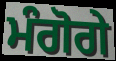
ਮੰਗੋਗੇ